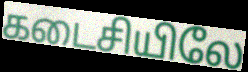
கடைசியிலே